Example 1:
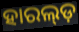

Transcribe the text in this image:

ହାରଲ୍ଡ଼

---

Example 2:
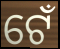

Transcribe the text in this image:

ଟେଁ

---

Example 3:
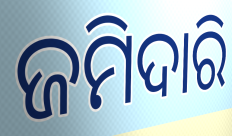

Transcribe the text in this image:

ଜମିଦାରି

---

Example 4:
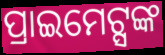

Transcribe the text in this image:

ପ୍ରାଇମେଟ୍ସଙ୍କ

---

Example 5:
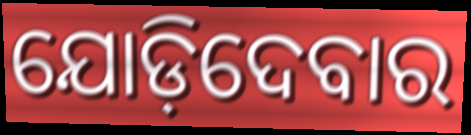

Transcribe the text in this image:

ଯୋଡ଼ିଦେବାର